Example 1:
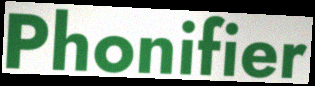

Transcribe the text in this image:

Phonifier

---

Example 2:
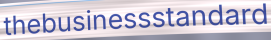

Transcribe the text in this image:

thebusinessstandard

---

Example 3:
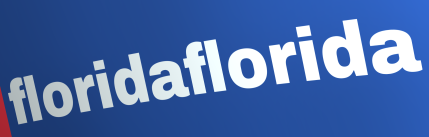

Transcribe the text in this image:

floridaflorida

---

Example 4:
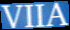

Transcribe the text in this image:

VIIA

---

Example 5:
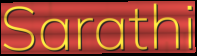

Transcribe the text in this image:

Sarathi